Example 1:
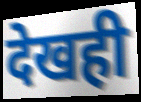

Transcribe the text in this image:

देखही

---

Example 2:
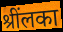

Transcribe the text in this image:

श्रींलका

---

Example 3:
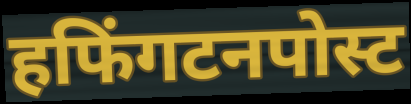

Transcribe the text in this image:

हफिंगटनपोस्ट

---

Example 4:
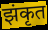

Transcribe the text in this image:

झंकृत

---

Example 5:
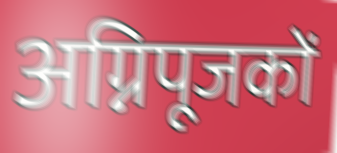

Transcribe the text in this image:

अग्निपूजकों